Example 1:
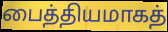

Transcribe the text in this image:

பைத்தியமாகத்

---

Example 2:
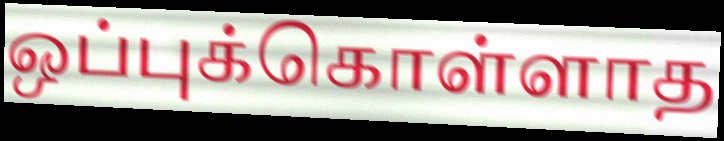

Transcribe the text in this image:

ஒப்புக்கொள்ளாத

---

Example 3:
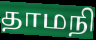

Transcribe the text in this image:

தாமநி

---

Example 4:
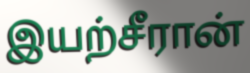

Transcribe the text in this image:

இயற்சீரான்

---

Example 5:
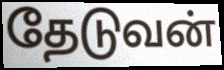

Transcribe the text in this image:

தேடுவன்